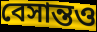
বেসান্তও